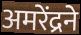
अमरेंद्रने